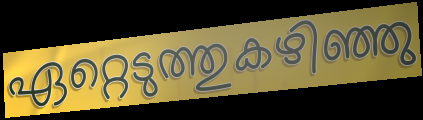
ഏറ്റെടുത്തുകഴിഞ്ഞു